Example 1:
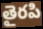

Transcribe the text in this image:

తైరపి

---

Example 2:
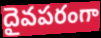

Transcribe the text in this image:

దైవపరంగా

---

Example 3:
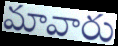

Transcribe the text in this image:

మావారు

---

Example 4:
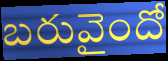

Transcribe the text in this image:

బరువైందో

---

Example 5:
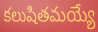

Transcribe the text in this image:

కలుషితమయ్యే